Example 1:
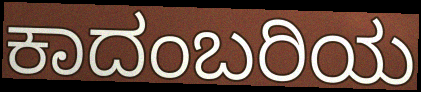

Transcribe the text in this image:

ಕಾದಂಬರಿಯ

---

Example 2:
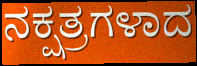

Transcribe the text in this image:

ನಕ್ಷತ್ರಗಳಾದ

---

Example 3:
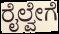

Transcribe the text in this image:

ರೈಲ್ವೇಗೆ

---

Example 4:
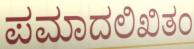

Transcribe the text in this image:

ಪಮಾದಲಿಖಿತಂ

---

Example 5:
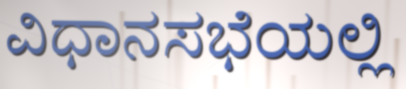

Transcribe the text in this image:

ವಿಧಾನಸಭೆಯಲ್ಲಿ